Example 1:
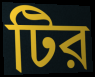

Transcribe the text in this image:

টির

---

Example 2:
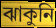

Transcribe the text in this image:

ঝাকুনি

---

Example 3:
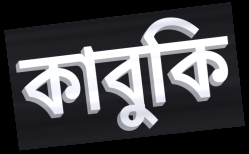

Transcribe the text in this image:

কাবুকি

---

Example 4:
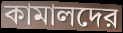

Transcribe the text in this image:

কামালদের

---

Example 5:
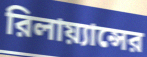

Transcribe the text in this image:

রিলায়্যান্সের